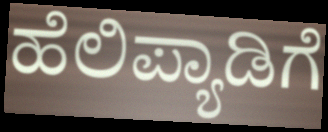
ಹೆಲಿಪ್ಯಾಡಿಗೆ